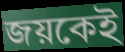
জয়কেই